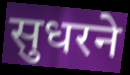
सुधरने